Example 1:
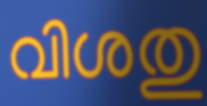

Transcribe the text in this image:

വിശതു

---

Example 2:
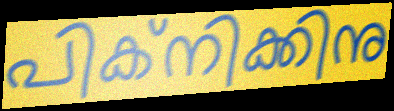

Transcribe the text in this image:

പിക്നിക്കിനു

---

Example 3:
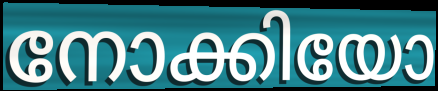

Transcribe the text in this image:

നോക്കിയോ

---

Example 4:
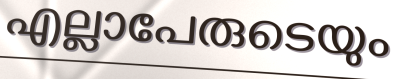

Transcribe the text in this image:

എല്ലാപേരുടെയും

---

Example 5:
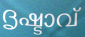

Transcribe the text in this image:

ദൃഷ്ടാവ്